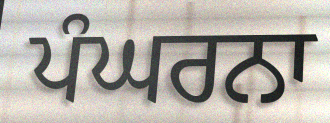
ਪੰਘਰਨਾ